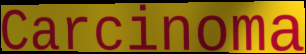
Carcinoma